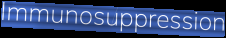
Immunosuppression